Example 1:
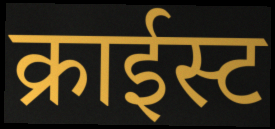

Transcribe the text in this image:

क्राईस्ट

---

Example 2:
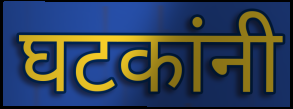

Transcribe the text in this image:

घटकांनी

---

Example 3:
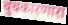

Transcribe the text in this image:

चुचकारणारा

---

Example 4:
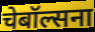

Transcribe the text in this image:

चेबॉल्सना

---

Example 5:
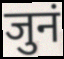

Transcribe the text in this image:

जुनं